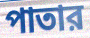
পাতার